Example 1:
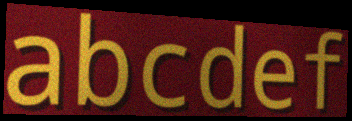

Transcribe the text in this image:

abcdef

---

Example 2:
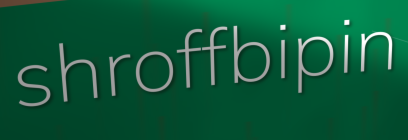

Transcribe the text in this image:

shroffbipin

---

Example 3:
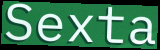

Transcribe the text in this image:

Sexta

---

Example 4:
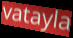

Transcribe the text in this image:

vatayla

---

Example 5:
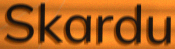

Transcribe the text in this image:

Skardu